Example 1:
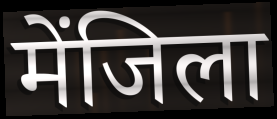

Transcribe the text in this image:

मेंजिला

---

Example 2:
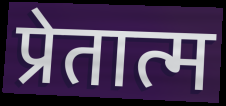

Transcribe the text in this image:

प्रेतात्म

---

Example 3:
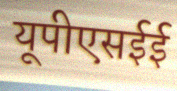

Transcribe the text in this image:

यूपीएसईई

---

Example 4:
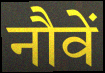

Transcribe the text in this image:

नौवें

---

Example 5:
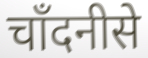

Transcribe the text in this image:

चाँदनीसे